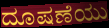
ದೂಷಣೆಯು